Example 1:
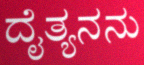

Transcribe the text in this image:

ದೈತ್ಯನನು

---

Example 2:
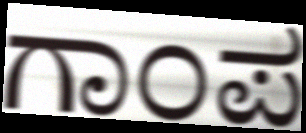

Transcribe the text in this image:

ಗಾಂಪ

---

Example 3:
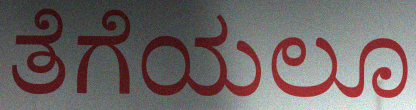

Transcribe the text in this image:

ತೆಗೆಯಲೂ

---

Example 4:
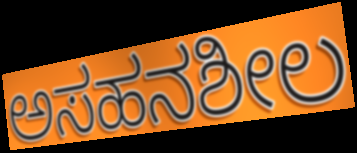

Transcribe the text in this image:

ಅಸಹನಶೀಲ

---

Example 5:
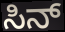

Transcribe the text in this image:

ಸಿನ್